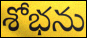
శోభను